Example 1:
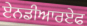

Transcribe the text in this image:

ਏਨਡੀਆਰਏਫ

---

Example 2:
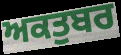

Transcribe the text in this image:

ਅਕਤੁਬਰ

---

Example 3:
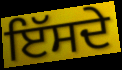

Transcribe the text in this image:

ਇੱਸਦੇ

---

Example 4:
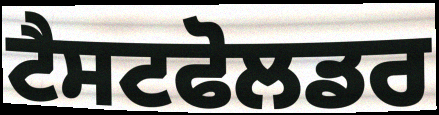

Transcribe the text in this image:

ਟੈਸਟਫੋਲਡਰ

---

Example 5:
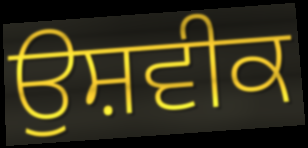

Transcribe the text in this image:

ਉਸ਼ਵੀਕ